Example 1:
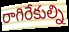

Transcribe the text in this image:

రాగిరేకుల్ని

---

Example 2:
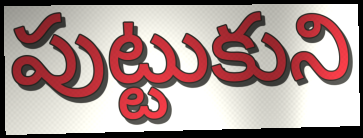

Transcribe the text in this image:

పుట్టుకుని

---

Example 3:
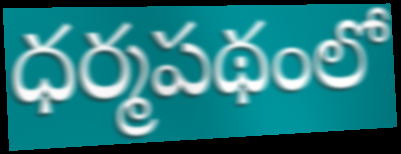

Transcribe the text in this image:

ధర్మపథంలో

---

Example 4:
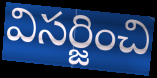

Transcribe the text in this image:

విసర్జించి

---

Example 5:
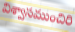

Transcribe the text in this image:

విశ్వాసముంచిరి